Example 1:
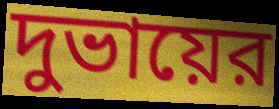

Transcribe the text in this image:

দুভায়ের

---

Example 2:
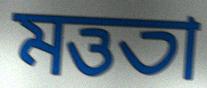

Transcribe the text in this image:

মত্ততা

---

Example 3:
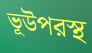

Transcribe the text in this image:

ভূউপরস্থ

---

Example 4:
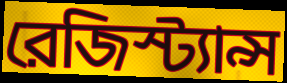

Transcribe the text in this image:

রেজিস্ট্যান্স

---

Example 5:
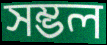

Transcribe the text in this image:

সম্ভল